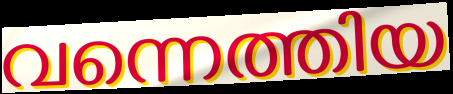
വന്നെത്തിയ